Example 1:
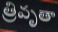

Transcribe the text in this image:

త్రివృతా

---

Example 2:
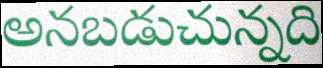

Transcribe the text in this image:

అనబడుచున్నది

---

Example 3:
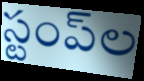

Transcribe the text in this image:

స్టంప్‌ల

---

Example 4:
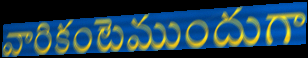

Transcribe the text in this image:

వారికంటెముందుగా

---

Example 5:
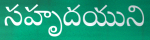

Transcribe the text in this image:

సహృదయుని